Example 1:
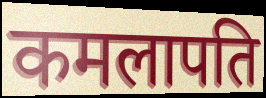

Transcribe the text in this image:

कमलापति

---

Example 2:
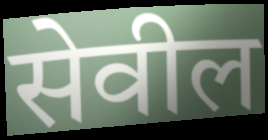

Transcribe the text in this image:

सेवील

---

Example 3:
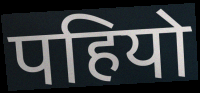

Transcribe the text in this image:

पहियो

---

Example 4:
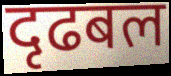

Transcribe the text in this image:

दृढबल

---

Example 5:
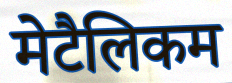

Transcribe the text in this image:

मेटैलिकम